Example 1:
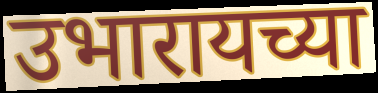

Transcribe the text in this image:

उभारायच्या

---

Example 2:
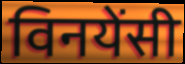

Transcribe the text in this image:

विनयेंसी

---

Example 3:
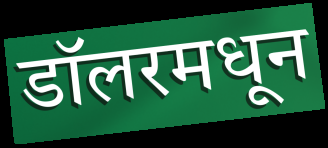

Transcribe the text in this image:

डॉलरमधून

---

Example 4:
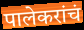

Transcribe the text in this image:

पालेकरांचं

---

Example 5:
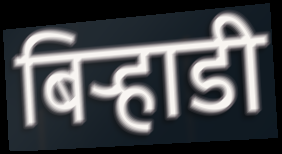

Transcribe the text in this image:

बिर्‍हाडी